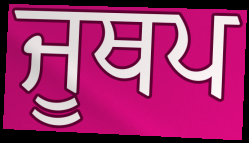
ਜੂਥਪ